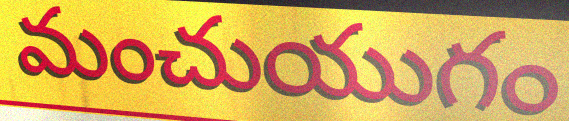
మంచుయుగం